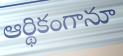
ఆర్థికంగానూ